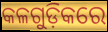
କଳଗୁଡ଼ିକରେ